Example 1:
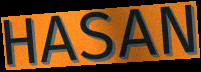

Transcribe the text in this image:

HASAN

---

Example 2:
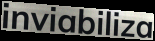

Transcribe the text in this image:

inviabiliza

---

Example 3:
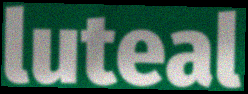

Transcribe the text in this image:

luteal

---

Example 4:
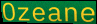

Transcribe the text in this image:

Ozeane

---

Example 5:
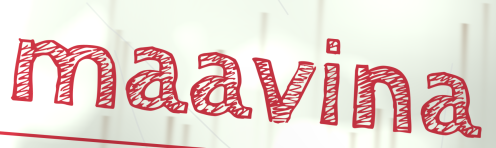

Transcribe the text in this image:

maavina